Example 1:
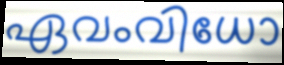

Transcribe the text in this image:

ഏവംവിധോ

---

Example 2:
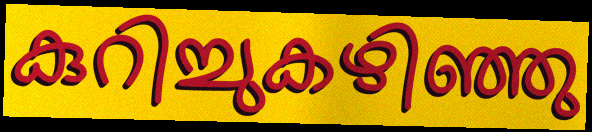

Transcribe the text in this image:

കുറിച്ചുകഴിഞ്ഞു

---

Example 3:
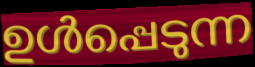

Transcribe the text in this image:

ഉൾപ്പെടുന്ന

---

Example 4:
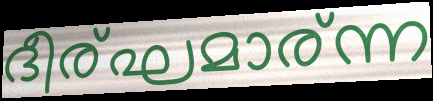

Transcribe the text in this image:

ദീര്ഘമാര്ന്ന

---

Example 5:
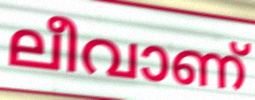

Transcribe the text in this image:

ലീവാണ്